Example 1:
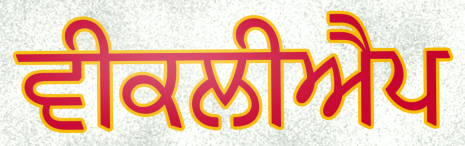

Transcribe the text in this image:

ਵੀਕਲੀਐਪ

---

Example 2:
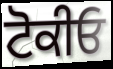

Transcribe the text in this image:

ਟੋਕੀਓ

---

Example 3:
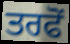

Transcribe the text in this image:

ਤਰਫੋਂ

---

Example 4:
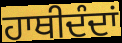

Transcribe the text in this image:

ਹਾਥੀਦੰਦਾਂ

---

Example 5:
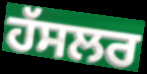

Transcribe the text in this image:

ਹੱਸਲਰ